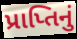
પ્રાપ્તિનું